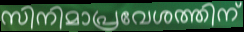
സിനിമാപ്രവേശത്തിന്